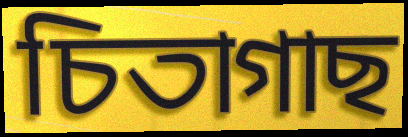
চিতাগাছ